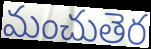
మంచుతెర